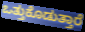
ಒತ್ತುಕೊಡುತ್ತಾರೆ